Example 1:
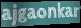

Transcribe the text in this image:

ajgaonkar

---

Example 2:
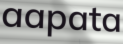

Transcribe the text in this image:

aapata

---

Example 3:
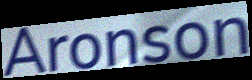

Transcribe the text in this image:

Aronson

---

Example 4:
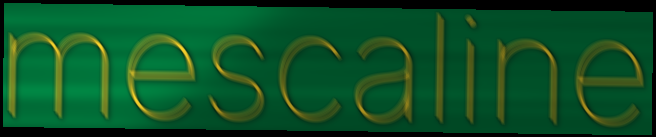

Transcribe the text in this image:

mescaline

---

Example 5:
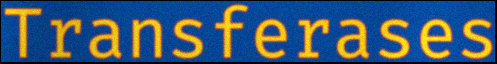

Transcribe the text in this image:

Transferases